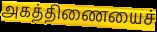
அகத்திணையைச்